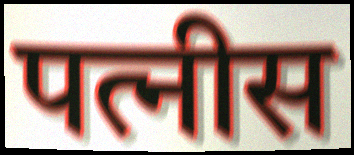
पत्‍नीस